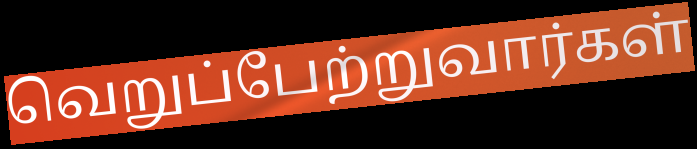
வெறுப்பேற்றுவார்கள்